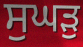
ਸੁਘੜੁ